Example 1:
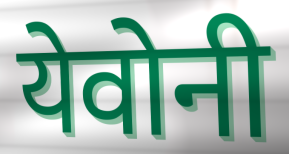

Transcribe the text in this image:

येवोनी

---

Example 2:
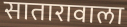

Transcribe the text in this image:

सातारावाला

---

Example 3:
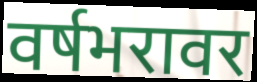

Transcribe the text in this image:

वर्षभरावर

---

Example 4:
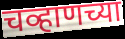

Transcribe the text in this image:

चव्हाणच्या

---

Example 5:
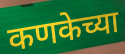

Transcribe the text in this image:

कणकेच्या